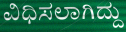
ವಿಧಿಸಲಾಗಿದ್ದು